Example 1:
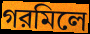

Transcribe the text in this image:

গরমিলে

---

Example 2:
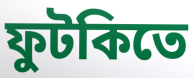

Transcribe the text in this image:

ফুটকিতে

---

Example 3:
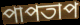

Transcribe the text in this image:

পাপতাপ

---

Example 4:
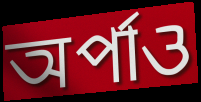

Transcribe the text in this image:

অর্পাও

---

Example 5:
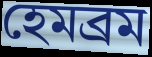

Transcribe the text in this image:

হেমব্রম